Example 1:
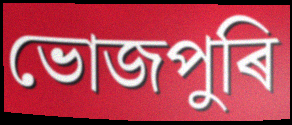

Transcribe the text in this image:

ভোজপুৰি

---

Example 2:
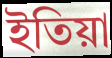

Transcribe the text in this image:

ইতিয়া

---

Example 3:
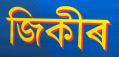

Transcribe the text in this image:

জিকীৰ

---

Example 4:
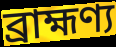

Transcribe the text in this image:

ব্ৰাহ্মণ্য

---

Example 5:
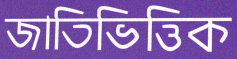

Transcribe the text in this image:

জাতিভিত্তিক